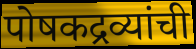
पोषकद्रव्यांची